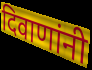
दिवाणांनी